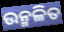
ଉନ୍ମଳିତ